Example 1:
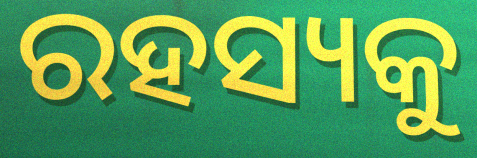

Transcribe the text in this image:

ରହସ୍ୟକୁ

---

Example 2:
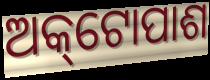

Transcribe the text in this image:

ଅକ୍‌ଟୋପାଶ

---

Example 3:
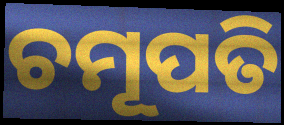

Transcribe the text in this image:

ଚମୂପତି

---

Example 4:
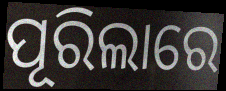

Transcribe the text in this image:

ପୂରିଲାରେ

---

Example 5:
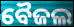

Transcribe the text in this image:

ବୈଜଲ